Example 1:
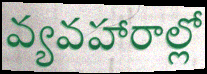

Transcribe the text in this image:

వ్యవహారాల్లో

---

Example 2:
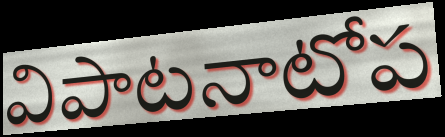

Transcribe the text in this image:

విపాటనాటోప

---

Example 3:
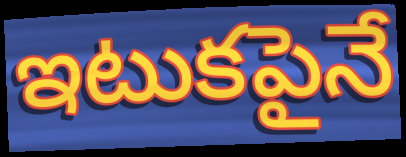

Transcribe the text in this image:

ఇటుకపైనే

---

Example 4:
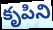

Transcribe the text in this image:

కృపిని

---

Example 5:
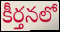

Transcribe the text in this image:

కీర్తనలో